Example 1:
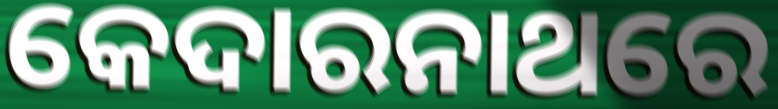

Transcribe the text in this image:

କେଦାରନାଥରେ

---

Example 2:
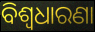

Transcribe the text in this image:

ବିଶ୍ୱଧାରଣା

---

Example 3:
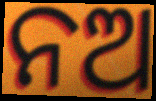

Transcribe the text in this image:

ନଅ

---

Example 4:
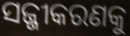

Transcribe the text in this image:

ସଜ୍ଜୀକରଣକୁ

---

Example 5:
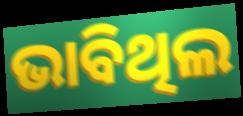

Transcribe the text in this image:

ଭାବିଥିଲ